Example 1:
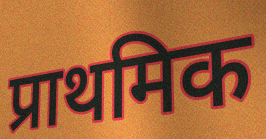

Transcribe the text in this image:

प्राथमिक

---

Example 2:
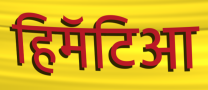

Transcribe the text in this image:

हिमॅटिआ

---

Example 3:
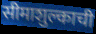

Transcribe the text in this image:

सीमाशुल्काची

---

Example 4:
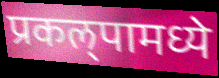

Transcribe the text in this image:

प्रकल्पामध्ये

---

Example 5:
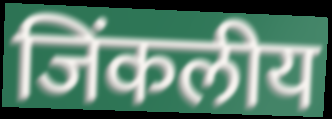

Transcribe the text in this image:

जिंकलीय